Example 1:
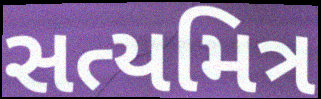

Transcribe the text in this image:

સત્યમિત્ર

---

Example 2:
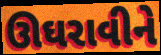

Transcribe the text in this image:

ઊઘરાવીને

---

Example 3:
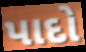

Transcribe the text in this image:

પાદો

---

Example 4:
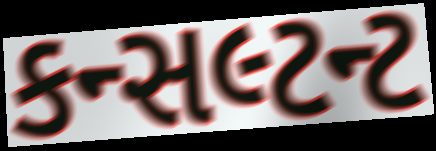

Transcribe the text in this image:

કન્સલ્ટન્ટ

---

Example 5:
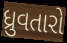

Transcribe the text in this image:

ધ્રુવતારો